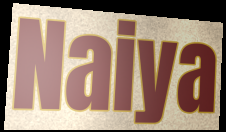
Naiya